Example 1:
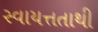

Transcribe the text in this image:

સ્વાયત્તતાથી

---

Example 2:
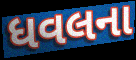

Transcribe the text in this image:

ધવલના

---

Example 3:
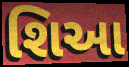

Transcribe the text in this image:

શિઆ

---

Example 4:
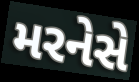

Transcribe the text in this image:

મરનેસે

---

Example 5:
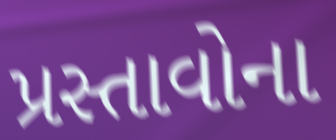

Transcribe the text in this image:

પ્રસ્તાવોના